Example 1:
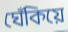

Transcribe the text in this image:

ঘেঁকিয়ে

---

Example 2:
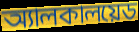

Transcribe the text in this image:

অ্যালকালয়েড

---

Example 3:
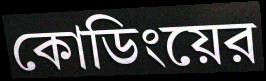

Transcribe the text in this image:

কোডিংয়ের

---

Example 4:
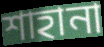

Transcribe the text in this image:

শাহানা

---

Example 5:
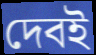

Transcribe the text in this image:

দেবই